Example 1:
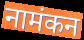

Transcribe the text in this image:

नामंकन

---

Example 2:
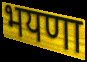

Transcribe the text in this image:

भयणा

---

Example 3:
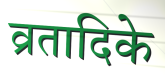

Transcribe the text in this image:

व्रतादिके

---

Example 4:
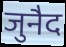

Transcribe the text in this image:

जुनैद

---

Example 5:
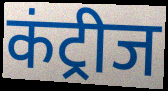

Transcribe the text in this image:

कंट्रीज